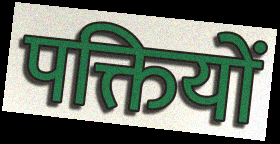
पक्तियों